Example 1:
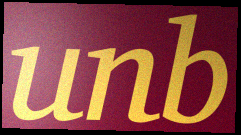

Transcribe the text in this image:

unb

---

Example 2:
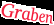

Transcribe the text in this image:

Graben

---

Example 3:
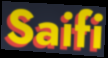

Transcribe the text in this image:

Saifi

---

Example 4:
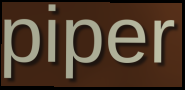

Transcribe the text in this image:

piper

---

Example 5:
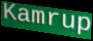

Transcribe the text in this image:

Kamrup